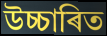
উচ্চাৰিত